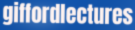
giffordlectures